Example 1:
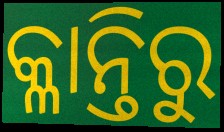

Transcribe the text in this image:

କ୍ଳାନ୍ତିରୁ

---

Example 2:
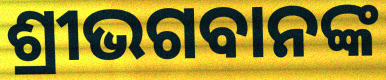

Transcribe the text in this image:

ଶ୍ରୀଭଗବାନଙ୍କ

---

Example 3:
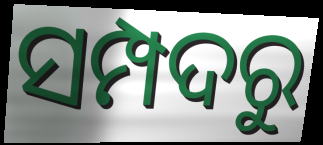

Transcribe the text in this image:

ସମ୍ପଦରୁ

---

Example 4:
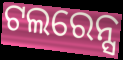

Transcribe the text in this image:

ଟଲରେନ୍ସ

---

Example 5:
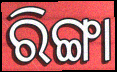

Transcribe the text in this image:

ରିଙ୍ଗା